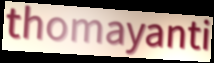
thomayanti